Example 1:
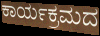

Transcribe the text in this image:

ಕಾರ್ಯಕ್ರಮದ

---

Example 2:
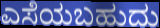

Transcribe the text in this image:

ಎಸೆಯಬಹುದು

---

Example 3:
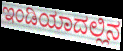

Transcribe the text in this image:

ಇಂಡಿಯಾದಲ್ಲಿನ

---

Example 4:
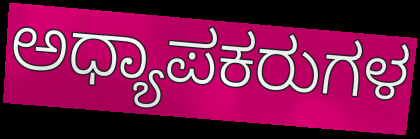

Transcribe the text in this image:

ಅಧ್ಯಾಪಕರುಗಳ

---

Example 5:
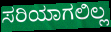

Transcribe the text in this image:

ಸರಿಯಾಗಲಿಲ್ಲ